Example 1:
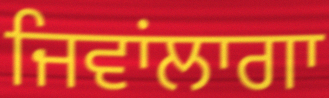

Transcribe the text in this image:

ਜਿਵਾਂਲਾਗਾ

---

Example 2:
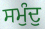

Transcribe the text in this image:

ਸਮੁੰਦੁ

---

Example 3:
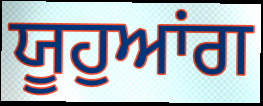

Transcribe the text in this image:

ਯੂਹੁਆਂਗ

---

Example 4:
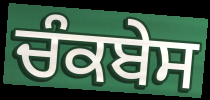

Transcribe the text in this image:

ਚੰਕਬੇਸ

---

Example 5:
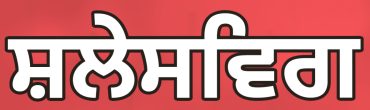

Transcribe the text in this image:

ਸ਼ਲੇਸਵਿਗ